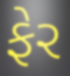
ફેર